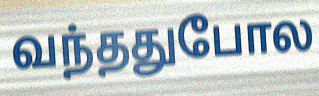
வந்ததுபோல